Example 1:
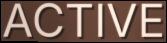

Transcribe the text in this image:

ACTIVE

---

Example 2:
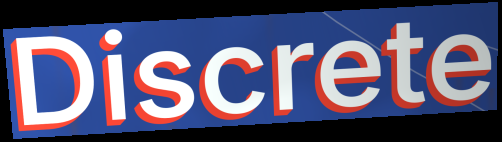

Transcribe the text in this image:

Discrete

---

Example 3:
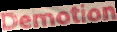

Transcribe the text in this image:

Demotion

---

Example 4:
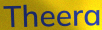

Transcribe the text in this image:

Theera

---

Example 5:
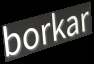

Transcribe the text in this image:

borkar